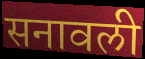
सनावली